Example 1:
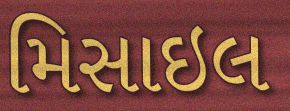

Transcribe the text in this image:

મિસાઇલ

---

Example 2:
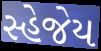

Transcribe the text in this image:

સ્હેજેય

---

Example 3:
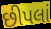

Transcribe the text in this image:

છીપલાં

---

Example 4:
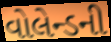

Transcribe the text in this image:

વોલેન્ડની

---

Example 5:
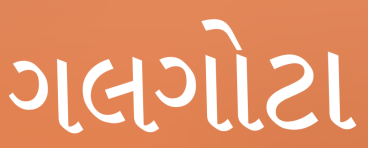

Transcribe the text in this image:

ગલગોટા